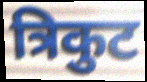
त्रिकुट